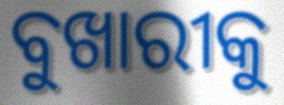
ବୁଖାରୀକୁ